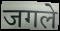
जगले